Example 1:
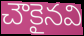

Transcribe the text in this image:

చౌకైనవి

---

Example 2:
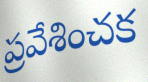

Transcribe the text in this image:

ప్రవేశించక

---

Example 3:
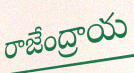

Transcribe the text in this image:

రాజేంద్రాయ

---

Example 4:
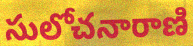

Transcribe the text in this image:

సులోచనారాణి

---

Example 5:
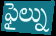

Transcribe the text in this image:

ఫైల్ను